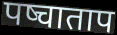
पष्चाताप